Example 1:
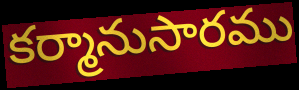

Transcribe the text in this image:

కర్మానుసారము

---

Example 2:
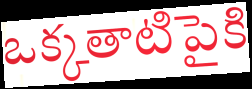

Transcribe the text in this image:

ఒక్కతాటిపైకి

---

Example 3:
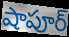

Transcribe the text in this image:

షాపూర్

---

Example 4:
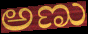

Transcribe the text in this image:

అణు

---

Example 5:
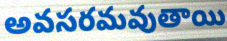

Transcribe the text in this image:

అవసరమవుతాయి